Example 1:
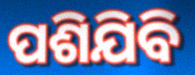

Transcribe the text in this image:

ପଶିଯିବି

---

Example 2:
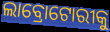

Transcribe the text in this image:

ଲାବ୍ରୋଟୋରୀକୁ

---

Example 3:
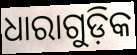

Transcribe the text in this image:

ଧାରାଗୁଡ଼ିକ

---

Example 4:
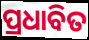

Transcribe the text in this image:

ପ୍ରଧାବିତ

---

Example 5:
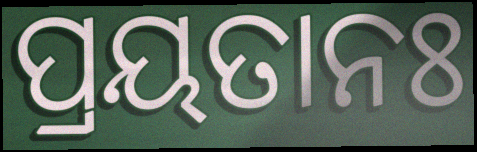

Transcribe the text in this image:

ପ୍ରୟତାନଃ